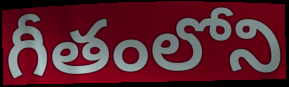
గీతంలోని